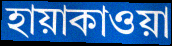
হায়াকাওয়া